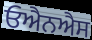
ਓਐਨਐਸ